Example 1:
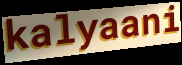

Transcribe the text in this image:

kalyaani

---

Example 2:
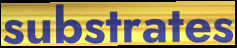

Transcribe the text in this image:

substrates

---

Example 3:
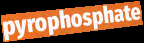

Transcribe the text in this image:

pyrophosphate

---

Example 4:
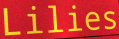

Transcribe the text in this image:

Lilies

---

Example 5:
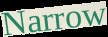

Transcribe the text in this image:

Narrow